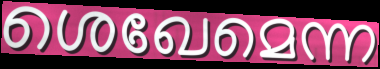
ശെഖേമെന്ന